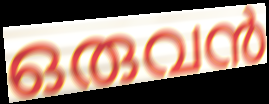
ഒരുവൻ